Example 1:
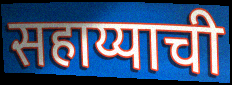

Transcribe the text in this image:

सहाय्याची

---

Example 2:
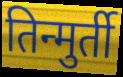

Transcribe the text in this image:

तिन्मुर्ती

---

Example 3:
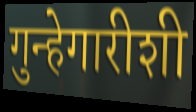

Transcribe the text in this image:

गुन्हेगारीशी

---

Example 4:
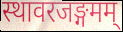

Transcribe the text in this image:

स्थावरजङ्गमम्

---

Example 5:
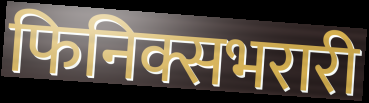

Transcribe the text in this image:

फिनिक्सभरारी